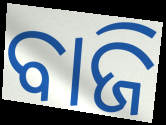
ବାଜି